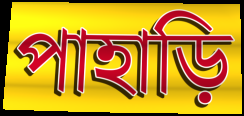
পাহাড়ি